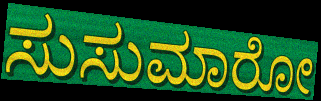
ಸುಸುಮಾರೋ